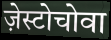
ज़ेस्टोचोवा